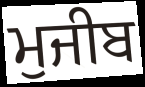
ਮੁਜੀਬ